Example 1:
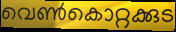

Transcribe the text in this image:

വെൺകൊറ്റക്കുട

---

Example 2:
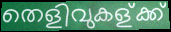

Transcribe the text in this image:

തെളിവുകള്ക്ക്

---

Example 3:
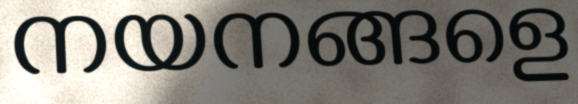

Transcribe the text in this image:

നയനങ്ങളെ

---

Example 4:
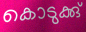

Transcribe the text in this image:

കൊടുക്കു്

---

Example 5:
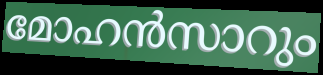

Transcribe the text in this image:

മോഹൻസാറും